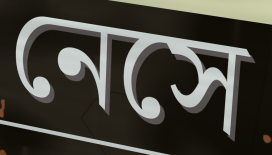
নেসে